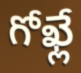
గోఖ్లే